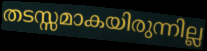
തടസ്സമാകയിരുന്നില്ല